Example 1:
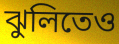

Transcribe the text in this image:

ঝুলিতেও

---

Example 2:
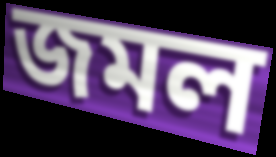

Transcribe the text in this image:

জমল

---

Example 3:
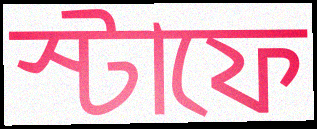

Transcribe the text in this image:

স্টাফে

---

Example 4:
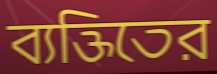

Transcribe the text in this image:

ব্যক্তিতের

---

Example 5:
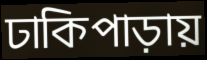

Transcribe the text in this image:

ঢাকিপাড়ায়